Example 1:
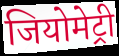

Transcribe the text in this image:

जियोमेट्री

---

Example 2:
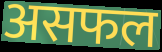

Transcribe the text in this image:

असफल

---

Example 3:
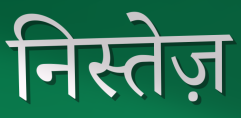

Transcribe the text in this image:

निस्तेज़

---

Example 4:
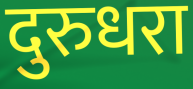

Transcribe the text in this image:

दुरुधरा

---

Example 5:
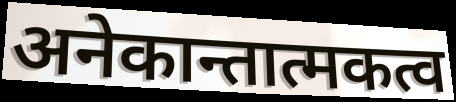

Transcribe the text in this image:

अनेकान्तात्मकत्व